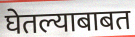
घेतल्याबाबत